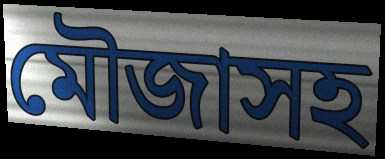
মৌজাসহ